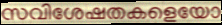
സവിശേഷതകളെയോ